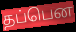
தப்பென